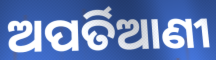
ଅପର୍ତିଆଣୀ